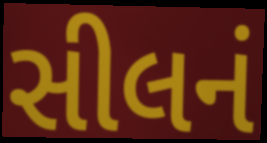
સીલનં